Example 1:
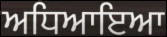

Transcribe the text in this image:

ਅਧਿਆਇਆ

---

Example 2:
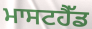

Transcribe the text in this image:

ਮਾਸਟਹੈੱਡ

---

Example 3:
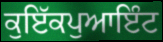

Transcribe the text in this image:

ਕੁਇੱਕਪੁਆਇੰਟ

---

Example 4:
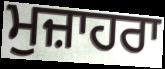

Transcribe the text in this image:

ਮੁਜ਼ਾਹਰਾ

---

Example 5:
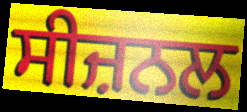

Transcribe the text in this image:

ਸੀਜ਼ਨਲ